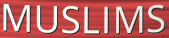
MUSLIMS